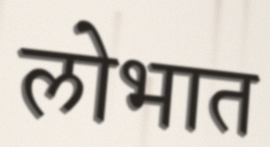
लोभात